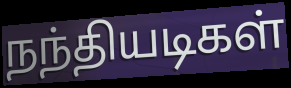
நந்தியடிகள்